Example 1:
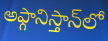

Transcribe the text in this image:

అఫ్గానిస్తాన్‌లో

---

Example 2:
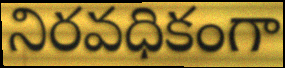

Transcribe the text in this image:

నిరవధికంగా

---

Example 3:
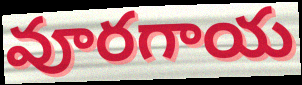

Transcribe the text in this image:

వూరగాయ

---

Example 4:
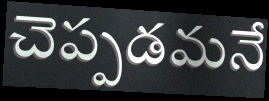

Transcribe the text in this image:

చెప్పడమనే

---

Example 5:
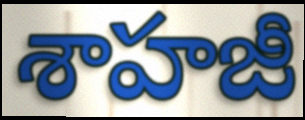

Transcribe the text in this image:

శాహజీ